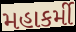
મહાકર્મી